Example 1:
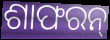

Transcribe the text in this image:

ଶାଫରନ୍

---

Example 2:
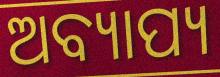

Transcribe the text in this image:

ଅବ୍ୟାପ୍ୟ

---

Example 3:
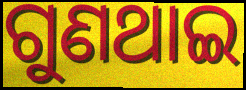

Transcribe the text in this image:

ଗୁଣଥାଇ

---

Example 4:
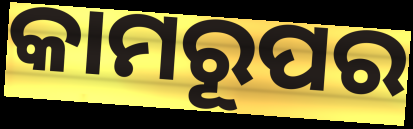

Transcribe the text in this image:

କାମରୂପର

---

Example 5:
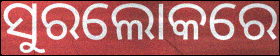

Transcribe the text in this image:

ସୁରଲୋକରେ